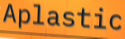
Aplastic